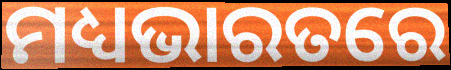
ମଧ୍ୟଭାରତରେ